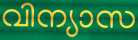
വിന്യാസ